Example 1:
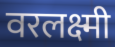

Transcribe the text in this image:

वरलक्ष्‍मी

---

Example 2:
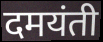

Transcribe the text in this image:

दमयंती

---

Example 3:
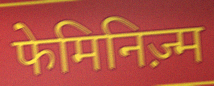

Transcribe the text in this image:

फेमिनिज़्म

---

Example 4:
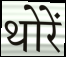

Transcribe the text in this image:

थोरें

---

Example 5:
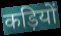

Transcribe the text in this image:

कड़ियों